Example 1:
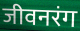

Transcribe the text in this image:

जीवनरंग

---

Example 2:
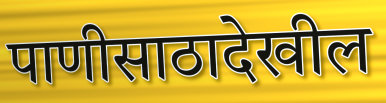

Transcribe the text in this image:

पाणीसाठादेखील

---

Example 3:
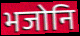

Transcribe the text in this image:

भजोनि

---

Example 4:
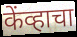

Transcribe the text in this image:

केंव्हाचा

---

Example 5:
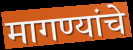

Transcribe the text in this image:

मागण्यांचे